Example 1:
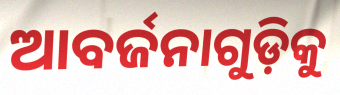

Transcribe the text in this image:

ଆବର୍ଜନାଗୁଡ଼ିକୁ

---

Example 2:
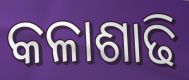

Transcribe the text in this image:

କଳାଶାଢି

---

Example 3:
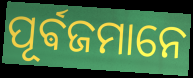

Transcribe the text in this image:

ପୂର୍ଵଜମାନେ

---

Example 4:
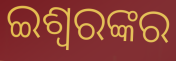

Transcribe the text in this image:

ଇଶ୍ୱରଙ୍କର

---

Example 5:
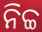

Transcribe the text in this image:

ନିଚ୍ଚ